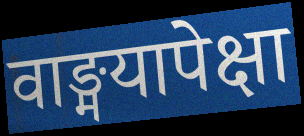
वाङ्मयापेक्षा